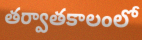
తర్వాతకాలంలో